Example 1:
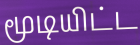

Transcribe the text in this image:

மூடியிட்ட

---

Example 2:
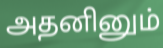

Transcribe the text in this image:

அதனினும்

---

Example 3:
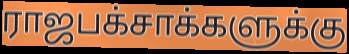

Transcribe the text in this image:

ராஜபக்சாக்களுக்கு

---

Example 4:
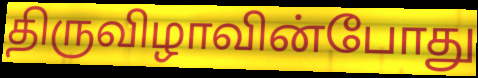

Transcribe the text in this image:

திருவிழாவின்போது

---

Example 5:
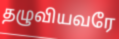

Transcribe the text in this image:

தழுவியவரே